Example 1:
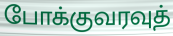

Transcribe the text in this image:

போக்குவரவுத்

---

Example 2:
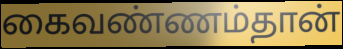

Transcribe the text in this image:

கைவண்ணம்தான்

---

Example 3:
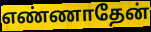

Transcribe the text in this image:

எண்ணாதேன்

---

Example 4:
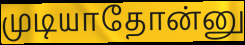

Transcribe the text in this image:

முடியாதோன்னு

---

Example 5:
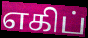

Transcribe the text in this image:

எகிப்